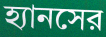
হ্যানসের